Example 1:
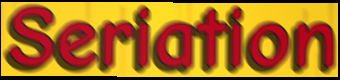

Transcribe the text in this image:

Seriation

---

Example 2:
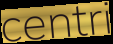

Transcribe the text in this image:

centri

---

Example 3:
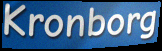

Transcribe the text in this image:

Kronborg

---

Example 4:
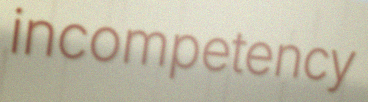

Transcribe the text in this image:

incompetency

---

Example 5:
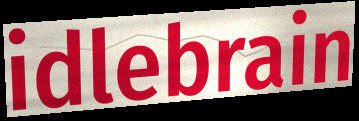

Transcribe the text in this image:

idlebrain